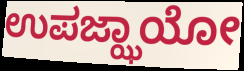
ಉಪಜ್ಝಾಯೋ